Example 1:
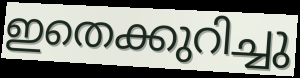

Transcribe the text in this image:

ഇതെക്കുറിച്ചു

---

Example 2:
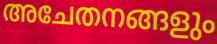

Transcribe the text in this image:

അചേതനങ്ങളും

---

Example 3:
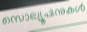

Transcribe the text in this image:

സൊല്യൂഷനുകൾ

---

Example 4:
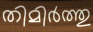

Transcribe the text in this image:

തിമിർത്തു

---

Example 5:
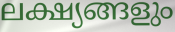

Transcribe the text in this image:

ലക്ഷ്യങ്ങളും